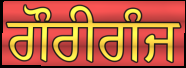
ਗੌਰੀਗੰਜ